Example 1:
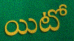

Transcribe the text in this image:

యిటో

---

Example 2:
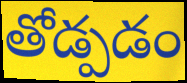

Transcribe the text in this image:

తోడ్పడం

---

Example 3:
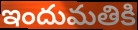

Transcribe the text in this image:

ఇందుమతికి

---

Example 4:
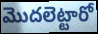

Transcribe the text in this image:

మొదలెట్టారో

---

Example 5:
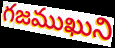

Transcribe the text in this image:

గజముఖుని